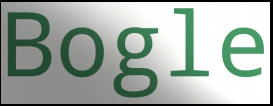
Bogle